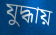
যুদ্ধায়